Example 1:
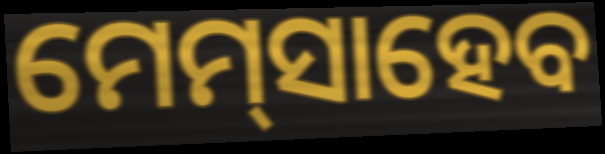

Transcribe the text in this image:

ମେମ୍‌ସାହେବ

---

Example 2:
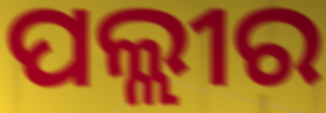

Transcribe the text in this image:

ପଲ୍ଲୀର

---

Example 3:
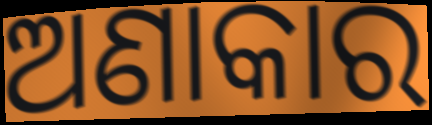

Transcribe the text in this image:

ଅଣାକାର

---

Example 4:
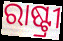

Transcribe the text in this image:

ରାଷ୍ଟ୍ରୀ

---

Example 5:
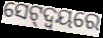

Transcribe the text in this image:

ସେଟ୍‌ଦ୍ଵୟରେ